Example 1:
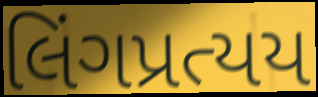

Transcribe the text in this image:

લિંગપ્રત્યય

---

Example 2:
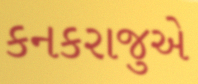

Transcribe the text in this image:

કનકરાજુએ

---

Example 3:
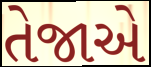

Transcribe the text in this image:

તેજાએ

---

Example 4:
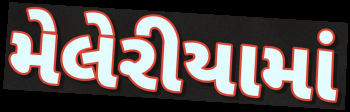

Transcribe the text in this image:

મેલેરીયામાં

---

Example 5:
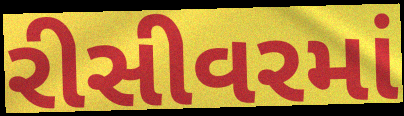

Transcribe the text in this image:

રીસીવરમાં